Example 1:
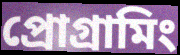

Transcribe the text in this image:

প্ৰোগ্ৰামিং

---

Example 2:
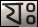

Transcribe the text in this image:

যঃ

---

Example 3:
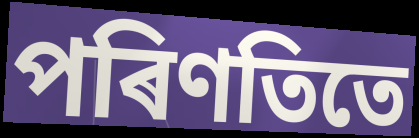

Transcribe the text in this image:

পৰিণতিতে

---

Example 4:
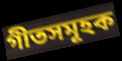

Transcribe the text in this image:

গীতসমূহক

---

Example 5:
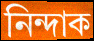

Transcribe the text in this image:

নিন্দাক